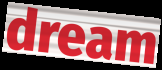
dream